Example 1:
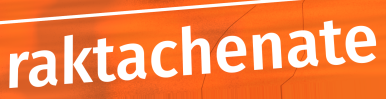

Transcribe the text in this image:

raktachenate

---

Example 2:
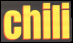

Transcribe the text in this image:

chili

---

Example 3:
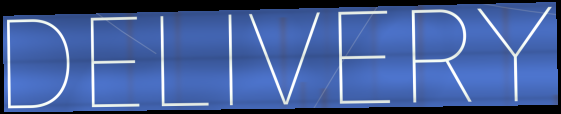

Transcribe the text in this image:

DELIVERY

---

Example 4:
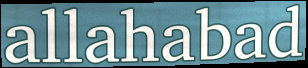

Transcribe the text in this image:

allahabad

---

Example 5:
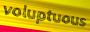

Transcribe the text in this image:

voluptuous